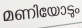
മണിയോടും